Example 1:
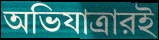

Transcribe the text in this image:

অভিযাত্রারই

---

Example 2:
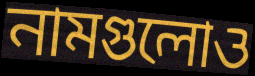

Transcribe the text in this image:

নামগুলোও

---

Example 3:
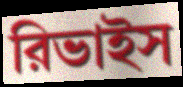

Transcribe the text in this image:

রিভাইস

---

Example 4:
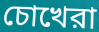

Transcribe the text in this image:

চোখেরা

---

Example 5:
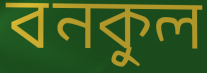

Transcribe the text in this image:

বনকুল